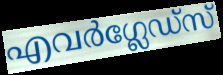
എവർഗ്ലേഡ്സ്